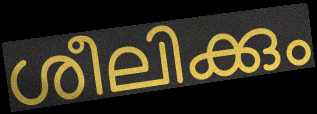
ശീലിക്കും